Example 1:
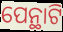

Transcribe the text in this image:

ପେନ୍ଥାଟି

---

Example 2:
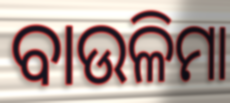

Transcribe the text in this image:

ବାଉଳିମା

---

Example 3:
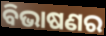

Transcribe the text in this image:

ବିଭାଷଣର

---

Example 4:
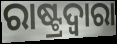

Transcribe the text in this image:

ରାଷ୍ଟ୍ରଦ୍ୱାରା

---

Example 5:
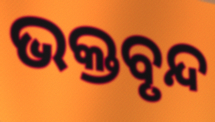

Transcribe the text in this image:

ଭକ୍ତବୃନ୍ଦ